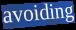
avoiding